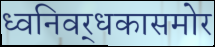
ध्वनिवर्धकासमोर